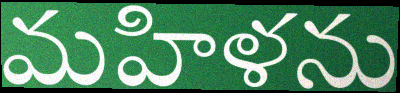
మహిళను